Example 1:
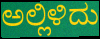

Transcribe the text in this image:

ಅಲ್ಲಿಳಿದು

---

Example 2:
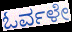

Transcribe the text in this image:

ಓರ್ವಳೇ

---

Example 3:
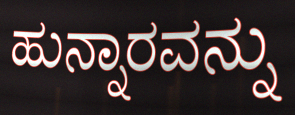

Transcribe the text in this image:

ಹುನ್ನಾರವನ್ನು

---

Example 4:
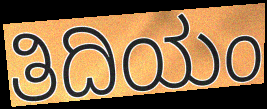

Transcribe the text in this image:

ತಿದಿಯಂ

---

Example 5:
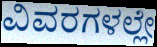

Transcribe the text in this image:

ವಿವರಗಳಲ್ಲೇ